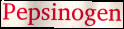
Pepsinogen